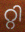
റ്റി